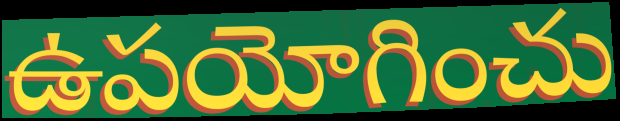
ఉపయోగించు